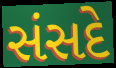
સંસદે